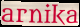
arnika